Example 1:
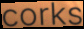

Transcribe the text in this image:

corks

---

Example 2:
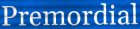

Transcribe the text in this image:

Premordial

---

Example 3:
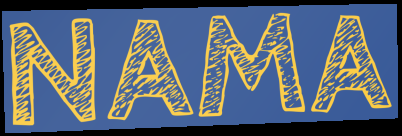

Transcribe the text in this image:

NAMA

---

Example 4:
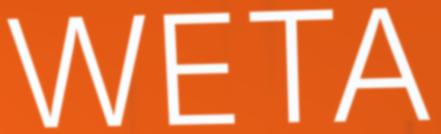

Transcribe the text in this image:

WETA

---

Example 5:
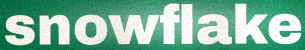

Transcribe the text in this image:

snowflake